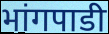
भांगपाडी